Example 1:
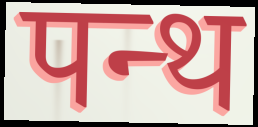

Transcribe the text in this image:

पन्थ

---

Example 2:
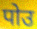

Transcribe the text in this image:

पोउ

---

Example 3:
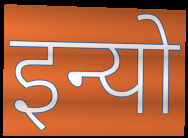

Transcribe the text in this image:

इन्यो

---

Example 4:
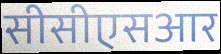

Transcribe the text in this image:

सीसीएसआर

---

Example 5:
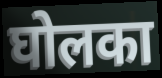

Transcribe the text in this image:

घोलका